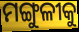
ମଙ୍ଗୁଳୀକୁ